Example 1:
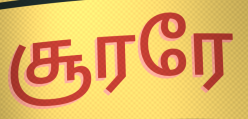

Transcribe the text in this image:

சூரரே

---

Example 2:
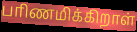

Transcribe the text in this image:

பரிணமிக்கிறாள்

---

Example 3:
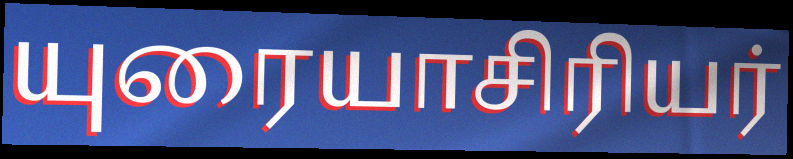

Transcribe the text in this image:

யுரையாசிரியர்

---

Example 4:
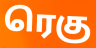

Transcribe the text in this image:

ரெகு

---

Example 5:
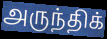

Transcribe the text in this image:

அருந்திக்